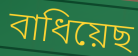
বাধিয়েছ